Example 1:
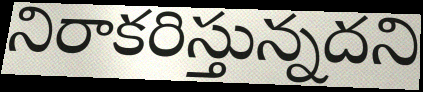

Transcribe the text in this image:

నిరాకరిస్తున్నదని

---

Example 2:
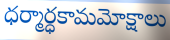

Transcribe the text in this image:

ధర్మార్ధకామమోక్షాలు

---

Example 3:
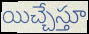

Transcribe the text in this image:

యిచ్చేస్తూ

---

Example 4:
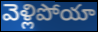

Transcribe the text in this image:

వెళ్లిపోయా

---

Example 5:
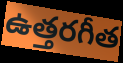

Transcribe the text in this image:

ఉత్తరగీత